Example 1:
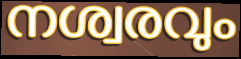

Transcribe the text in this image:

നശ്വരവും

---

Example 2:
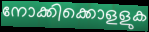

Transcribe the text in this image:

നോക്കിക്കൊളളുക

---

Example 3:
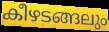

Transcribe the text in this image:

കീഴടങ്ങലും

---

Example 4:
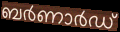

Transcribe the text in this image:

ബർണാർഡ്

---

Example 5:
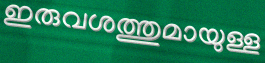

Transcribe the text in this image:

ഇരുവശത്തുമായുള്ള